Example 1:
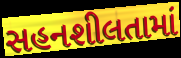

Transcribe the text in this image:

સહનશીલતામાં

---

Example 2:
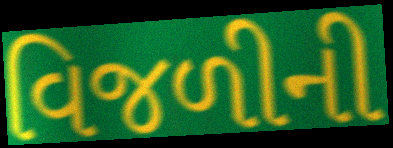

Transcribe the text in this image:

વિજળીની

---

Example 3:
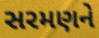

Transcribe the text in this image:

સરમણને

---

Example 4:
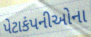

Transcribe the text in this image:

પેટાકંપનીઓના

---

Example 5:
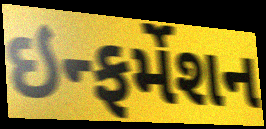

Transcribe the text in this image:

ઇન્ફર્મેશન